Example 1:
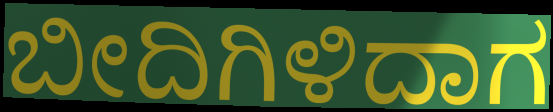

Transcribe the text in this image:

ಬೀದಿಗಿಳಿದಾಗ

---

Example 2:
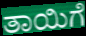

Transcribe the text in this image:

ತಾಯಿಗೆ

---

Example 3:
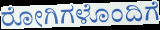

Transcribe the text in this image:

ರೋಗಿಗಳೊಂದಿಗೆ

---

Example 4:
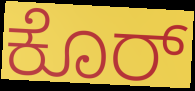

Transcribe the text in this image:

ಕೊರ್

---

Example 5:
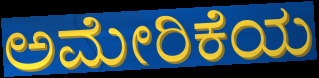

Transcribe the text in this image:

ಅಮೇರಿಕೆಯ